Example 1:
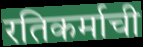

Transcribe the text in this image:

रतिकर्माची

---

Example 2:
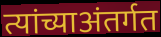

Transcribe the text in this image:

त्यांच्याअंतर्गत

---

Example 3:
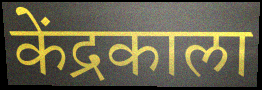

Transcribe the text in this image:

केंद्रकाला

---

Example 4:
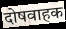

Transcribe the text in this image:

दोषवाहक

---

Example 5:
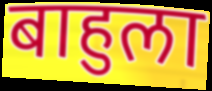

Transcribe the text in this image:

बाहुला